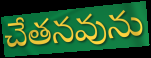
చేతనవును